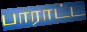
பாராட்ட